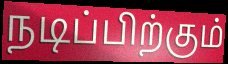
நடிப்பிற்கும்